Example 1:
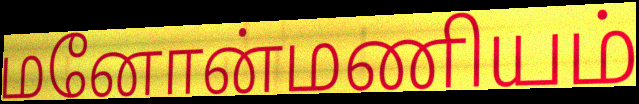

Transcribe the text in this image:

மனோன்மணியம்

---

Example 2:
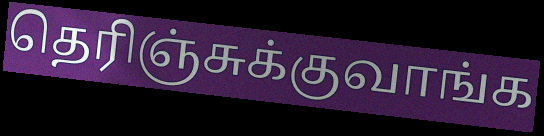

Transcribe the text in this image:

தெரிஞ்சுக்குவாங்க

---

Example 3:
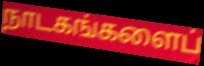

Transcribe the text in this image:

நாடகங்களைப்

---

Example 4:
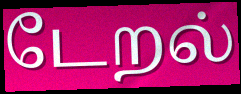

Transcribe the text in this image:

டேறல்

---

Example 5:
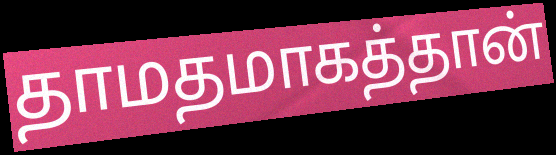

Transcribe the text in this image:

தாமதமாகத்தான்